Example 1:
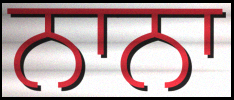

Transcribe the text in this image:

ਨਾਨਾ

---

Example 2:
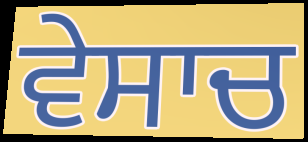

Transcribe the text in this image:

ਵੇਸਾਚ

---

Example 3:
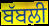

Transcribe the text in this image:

ਬੱਬਲੀ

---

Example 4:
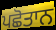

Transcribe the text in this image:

ਪਛੋਤਾਨ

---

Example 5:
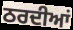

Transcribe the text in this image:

ਠਰਦੀਆਂ